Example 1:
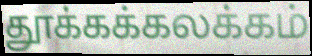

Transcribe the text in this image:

தூக்கக்கலக்கம்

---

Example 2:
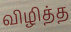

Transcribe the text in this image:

விழித்த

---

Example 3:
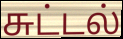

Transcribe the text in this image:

சுட்டல்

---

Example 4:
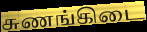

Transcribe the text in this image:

சுணங்கிடை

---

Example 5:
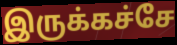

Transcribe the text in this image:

இருக்கச்சே